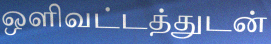
ஒளிவட்டத்துடன்